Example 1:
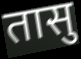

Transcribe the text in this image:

तासु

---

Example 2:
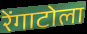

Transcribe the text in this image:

रेंगाटोला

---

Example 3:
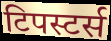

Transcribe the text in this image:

टिपस्टर्स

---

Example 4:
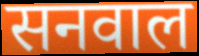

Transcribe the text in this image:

सनवाल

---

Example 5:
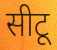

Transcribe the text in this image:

सीटू